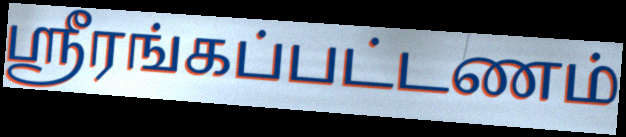
ஸ்ரீரங்கப்பட்டணம்